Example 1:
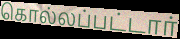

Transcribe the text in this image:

கொல்லப்பட்டார்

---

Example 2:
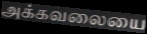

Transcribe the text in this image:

அக்கவலையை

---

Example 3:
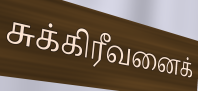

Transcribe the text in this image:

சுக்கிரீவனைக்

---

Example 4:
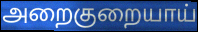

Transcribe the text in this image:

அறைகுறையாய்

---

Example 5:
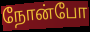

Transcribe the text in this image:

நோன்போ